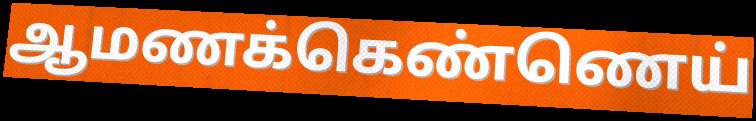
ஆமணக்கெண்ணெய்